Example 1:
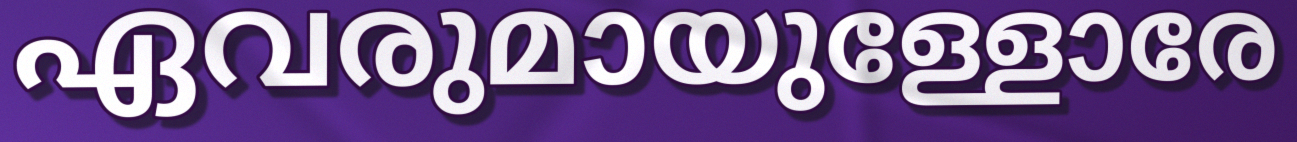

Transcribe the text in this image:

ഏവരുമായുള്ളോരേ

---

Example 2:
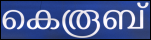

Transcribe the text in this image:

കെരൂബ്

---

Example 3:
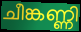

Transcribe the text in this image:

ചീങ്കണ്ണി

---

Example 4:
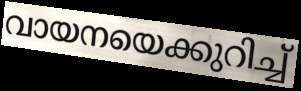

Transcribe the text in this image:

വായനയെക്കുറിച്ച്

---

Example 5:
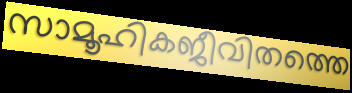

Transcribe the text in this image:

സാമൂഹികജീവിതത്തെ